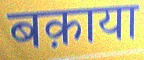
बक़ाया